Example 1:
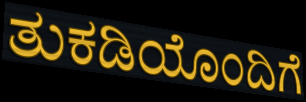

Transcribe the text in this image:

ತುಕಡಿಯೊಂದಿಗೆ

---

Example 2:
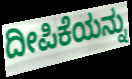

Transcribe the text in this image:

ದೀಪಿಕೆಯನ್ನು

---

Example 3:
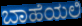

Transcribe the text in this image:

ಬಾಹೆಯಲಿ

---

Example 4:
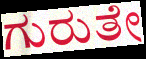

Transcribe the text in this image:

ಗುರುತೇ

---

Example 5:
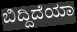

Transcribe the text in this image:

ಬಿದ್ದಿದೆಯಾ